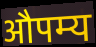
औपम्य